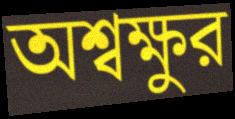
অশ্বক্ষুর